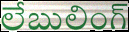
లేబులింగ్